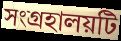
সংগ্রহালয়টি